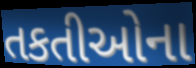
તકતીઓના